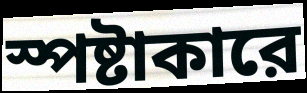
স্পষ্টাকারে